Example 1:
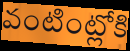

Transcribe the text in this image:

వంటింట్లోకి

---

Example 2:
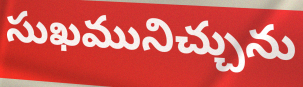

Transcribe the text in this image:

సుఖమునిచ్చును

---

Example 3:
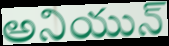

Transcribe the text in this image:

అనియున్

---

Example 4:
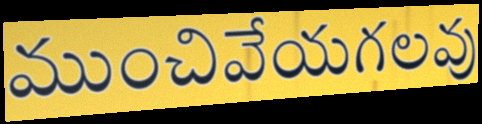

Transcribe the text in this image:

ముంచివేయగలవు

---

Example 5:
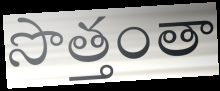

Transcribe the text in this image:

సొత్తంతా